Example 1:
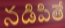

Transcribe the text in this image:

నడిపితే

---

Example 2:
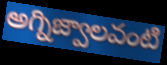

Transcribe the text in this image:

అగ్నిజ్వాలవంటి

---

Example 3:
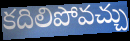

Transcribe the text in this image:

కదిలిపోవచ్చు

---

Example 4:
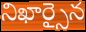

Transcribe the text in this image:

నిఖార్సైన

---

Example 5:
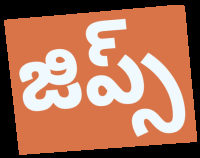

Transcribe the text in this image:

జిప్స్